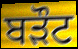
ਬੜੌਟ